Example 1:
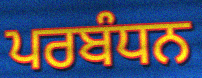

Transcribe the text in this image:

ਪਰਬੰਧਨ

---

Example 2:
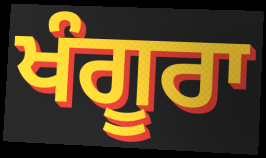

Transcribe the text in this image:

ਖੰਗੂਰਾ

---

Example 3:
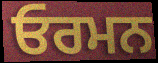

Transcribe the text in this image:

ਓਰਮਨ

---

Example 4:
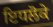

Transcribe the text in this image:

ਇਧਲੋਕੇ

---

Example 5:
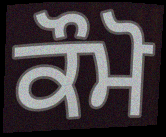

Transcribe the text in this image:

ਕੌਮੋ